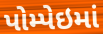
પોમ્પેઇમાં